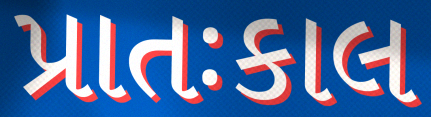
પ્રાતઃકાલ